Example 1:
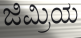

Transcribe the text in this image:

ಜಿಮ್ರಿಯ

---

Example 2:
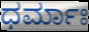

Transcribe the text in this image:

ಧರ್ಮಾಃ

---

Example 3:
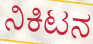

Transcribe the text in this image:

ನಿಕಿಟನ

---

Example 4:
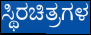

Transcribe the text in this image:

ಸ್ಥಿರಚಿತ್ರಗಳ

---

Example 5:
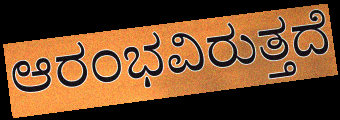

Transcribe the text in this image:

ಆರಂಭವಿರುತ್ತದೆ